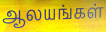
ஆலயங்கள்